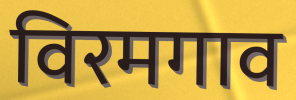
विरमगाव